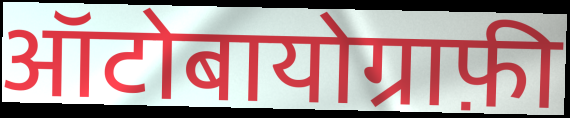
ऑटोबायोग्राफ़ी